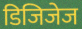
डिजिजेज